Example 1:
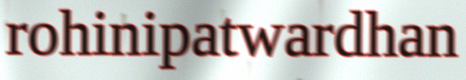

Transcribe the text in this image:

rohinipatwardhan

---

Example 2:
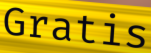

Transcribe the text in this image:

Gratis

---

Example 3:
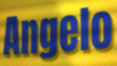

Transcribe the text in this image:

Angelo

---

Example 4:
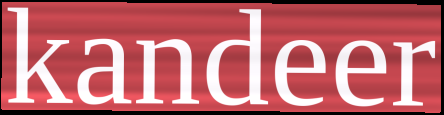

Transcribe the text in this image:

kandeer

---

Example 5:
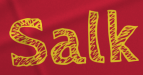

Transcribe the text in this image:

Salk